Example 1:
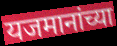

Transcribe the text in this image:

यजमानांच्या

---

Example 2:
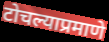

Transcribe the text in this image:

टोचल्याप्रमाणे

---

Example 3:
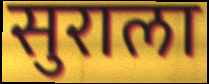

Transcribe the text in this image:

सुराला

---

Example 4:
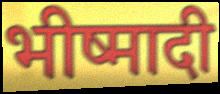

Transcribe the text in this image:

भीष्मादी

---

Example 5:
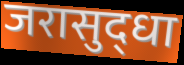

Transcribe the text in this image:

जरासुद्धा